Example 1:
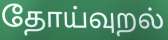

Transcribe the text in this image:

தோய்வுறல்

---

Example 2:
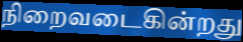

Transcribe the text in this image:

நிறைவடைகின்றது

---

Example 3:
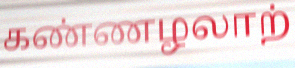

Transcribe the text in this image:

கண்ணழலாற்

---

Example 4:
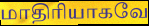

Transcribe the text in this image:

மாதிரியாகவே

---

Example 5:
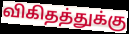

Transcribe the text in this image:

விகிதத்துக்கு